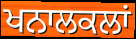
ਖਨਾਲਕਲਾਂ